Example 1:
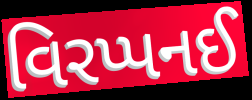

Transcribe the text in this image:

વિરપ્પનઈ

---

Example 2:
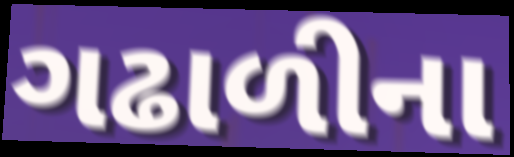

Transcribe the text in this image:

ગઢાળીના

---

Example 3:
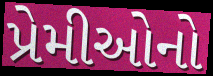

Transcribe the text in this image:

પ્રેમીઓનો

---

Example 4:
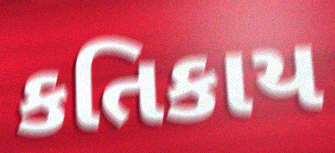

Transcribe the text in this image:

કતિકાય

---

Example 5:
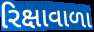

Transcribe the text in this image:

રિક્ષાવાળા